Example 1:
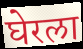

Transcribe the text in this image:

घेरला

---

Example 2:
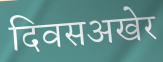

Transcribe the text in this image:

दिवसअखेर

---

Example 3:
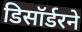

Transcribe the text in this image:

डिसॉर्डरने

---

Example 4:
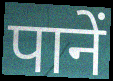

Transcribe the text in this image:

पानें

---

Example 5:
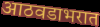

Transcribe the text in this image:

आठवडाभरात